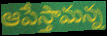
ఆపేస్తామన్న